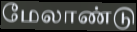
மேலாண்டு